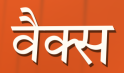
वैक्स